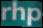
rhp